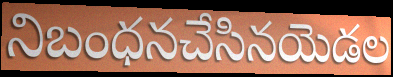
నిబంధనచేసినయెడల